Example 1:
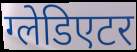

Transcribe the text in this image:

ग्लेडिएटर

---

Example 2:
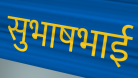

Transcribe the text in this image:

सुभाषभाई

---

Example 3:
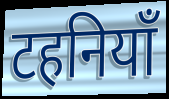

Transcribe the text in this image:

टहनियाँ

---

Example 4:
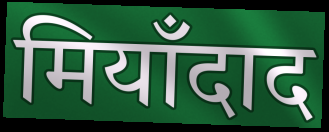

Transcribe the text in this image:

मियाँदाद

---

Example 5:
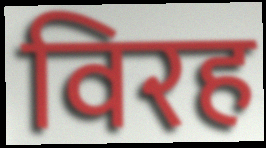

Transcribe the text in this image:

विरह